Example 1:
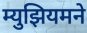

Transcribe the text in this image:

म्युझियमने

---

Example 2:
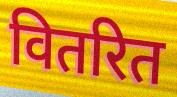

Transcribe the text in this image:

वितरित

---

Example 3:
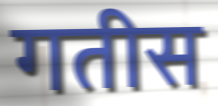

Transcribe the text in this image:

गतीस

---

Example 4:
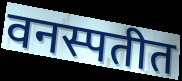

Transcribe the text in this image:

वनस्पतीत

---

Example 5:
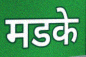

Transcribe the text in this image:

मडके